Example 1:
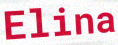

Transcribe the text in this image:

Elina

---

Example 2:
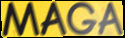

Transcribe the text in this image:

MAGA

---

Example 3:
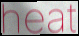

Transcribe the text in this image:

heat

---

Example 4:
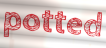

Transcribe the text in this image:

potted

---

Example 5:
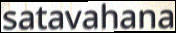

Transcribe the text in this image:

satavahana